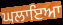
ਘਲਾਇਆ